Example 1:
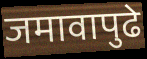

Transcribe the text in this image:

जमावापुढे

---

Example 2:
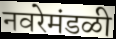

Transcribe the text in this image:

नवरेमंडळी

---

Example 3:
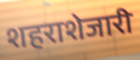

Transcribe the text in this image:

शहराशेजारी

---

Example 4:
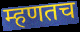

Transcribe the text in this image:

म्हणतच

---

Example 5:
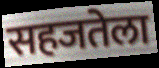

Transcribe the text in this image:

सहजतेला